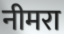
नीमरा